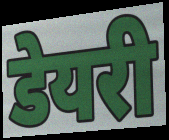
डेयरी